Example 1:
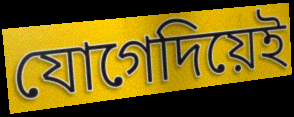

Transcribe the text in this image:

যোগেদিয়েই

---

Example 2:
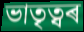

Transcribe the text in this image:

ভাতৃত্বৰ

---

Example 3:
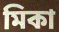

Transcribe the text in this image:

মিকা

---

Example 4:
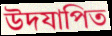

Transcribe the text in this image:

উদযাপিত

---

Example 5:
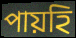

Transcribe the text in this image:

পায়হি